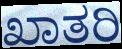
ಖಾತರಿ